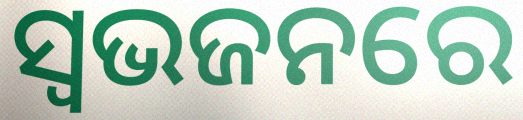
ସ୍ଵଭଜନରେ